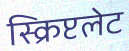
स्क्रिप्टलेट